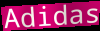
Adidas